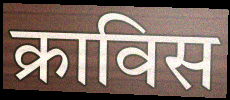
क्राविस